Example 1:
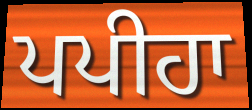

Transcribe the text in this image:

ਪਪੀਹਾ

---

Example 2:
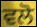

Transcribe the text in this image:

ਵਲੋ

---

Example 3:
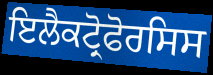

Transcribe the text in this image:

ਇਲੈਕਟ੍ਰੋਫੋਰਸਿਸ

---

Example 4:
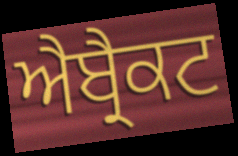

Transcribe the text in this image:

ਐਬ੍ਰੈਕਟ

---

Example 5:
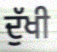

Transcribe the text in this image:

ਦੁੱਖੀ